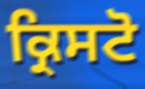
ਕ੍ਰਿਸਟੋ